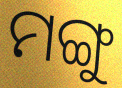
ମଙ୍ଗୁ